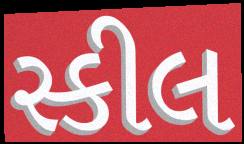
સ્કીલ